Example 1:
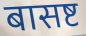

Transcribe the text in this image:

बासष्ट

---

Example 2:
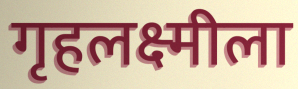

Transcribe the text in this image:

गृहलक्ष्मीला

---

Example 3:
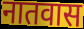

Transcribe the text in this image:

नातवास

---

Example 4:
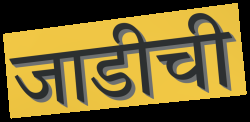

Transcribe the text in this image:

जाडीची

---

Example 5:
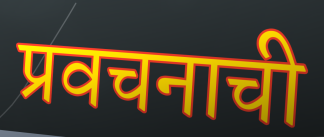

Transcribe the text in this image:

प्रवचनाची